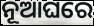
ନୂଆଘରେ